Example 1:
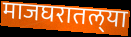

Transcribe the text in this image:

माजघरातल्या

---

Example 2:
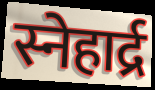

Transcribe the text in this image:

स्नेहार्द्र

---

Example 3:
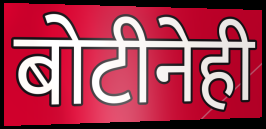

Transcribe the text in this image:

बोटीनेही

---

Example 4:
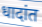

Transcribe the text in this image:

धादांत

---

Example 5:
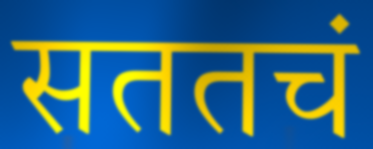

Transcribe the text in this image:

सततचं